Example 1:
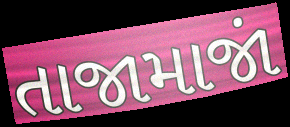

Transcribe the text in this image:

તાજામાજાં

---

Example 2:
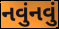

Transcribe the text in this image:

નવુંનવું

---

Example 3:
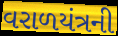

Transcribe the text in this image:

વરાળયંત્રની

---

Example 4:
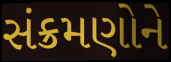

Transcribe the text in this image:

સંક્રમણોને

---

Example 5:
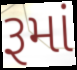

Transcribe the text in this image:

રૂમાં